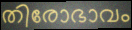
തിരോഭാവം